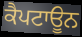
ਕੈਪਟਾਊਨ